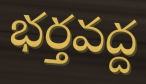
భర్తవద్ద